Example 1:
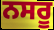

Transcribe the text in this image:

ਨਸਰੂ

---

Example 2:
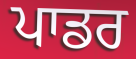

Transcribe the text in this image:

ਪਾਡਰ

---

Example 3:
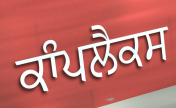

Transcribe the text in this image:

ਕਾੰਪਲੈਕਸ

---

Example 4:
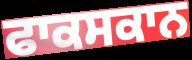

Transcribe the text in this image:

ਫਾਕਸਕਾਨ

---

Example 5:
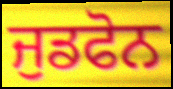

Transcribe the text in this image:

ਜੁਡਫੋਨ